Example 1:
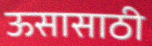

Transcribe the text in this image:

ऊसासाठी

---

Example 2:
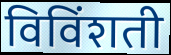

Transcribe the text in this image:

विविंशती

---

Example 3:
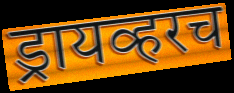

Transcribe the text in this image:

ड्रायव्हरच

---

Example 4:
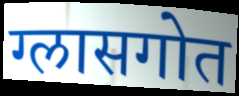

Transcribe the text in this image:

ग्लासगोत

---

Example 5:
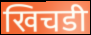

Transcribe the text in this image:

खिचडी